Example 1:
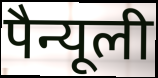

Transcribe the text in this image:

पैन्यूली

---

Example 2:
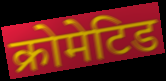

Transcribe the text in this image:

क्रोमेटिड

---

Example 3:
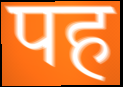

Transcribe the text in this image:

पह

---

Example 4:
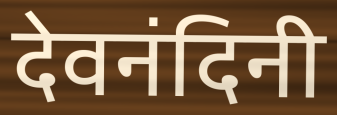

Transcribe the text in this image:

देवनंदिनी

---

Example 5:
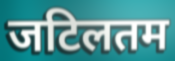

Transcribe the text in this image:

जटिलतम